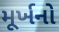
મૂર્ખનો